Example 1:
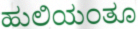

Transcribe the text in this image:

ಹುಲಿಯಂತೂ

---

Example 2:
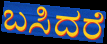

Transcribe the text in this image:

ಬಸಿದರೆ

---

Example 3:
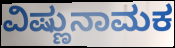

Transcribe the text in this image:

ವಿಷ್ಣುನಾಮಕ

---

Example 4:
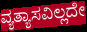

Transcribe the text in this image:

ವ್ಯತ್ಯಾಸವಿಲ್ಲದೇ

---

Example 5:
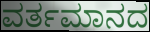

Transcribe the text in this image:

ವರ್ತಮಾನದ